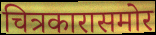
चित्रकारासमोर